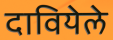
दावियेले